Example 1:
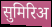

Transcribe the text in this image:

सुमिरिअ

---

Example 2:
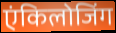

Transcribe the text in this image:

एंकिलोजिंग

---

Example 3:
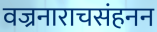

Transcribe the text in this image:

वज्रनाराचसंहनन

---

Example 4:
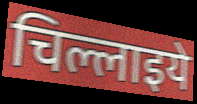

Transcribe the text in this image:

चिल्लाइये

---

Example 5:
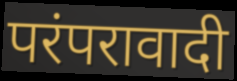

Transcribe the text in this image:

परंपरावादी